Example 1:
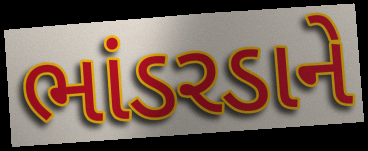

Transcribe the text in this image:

ભાંડરડાને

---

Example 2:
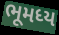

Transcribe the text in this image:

ભૂમધ્ય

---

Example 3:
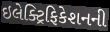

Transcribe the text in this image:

ઇલેક્ટ્રિફિકેશનની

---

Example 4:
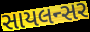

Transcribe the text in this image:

સાયલન્સર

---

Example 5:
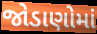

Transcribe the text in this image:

જોડાણોમાં